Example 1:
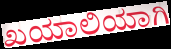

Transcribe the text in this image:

ಖಯಾಲಿಯಾಗಿ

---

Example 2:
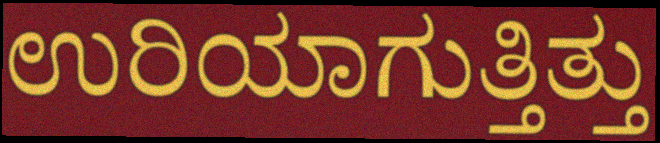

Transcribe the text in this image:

ಉರಿಯಾಗುತ್ತಿತ್ತು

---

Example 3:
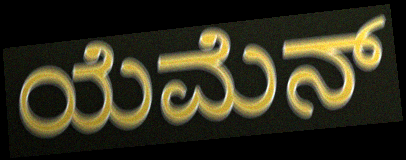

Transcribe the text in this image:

ಯೆಮೆನ್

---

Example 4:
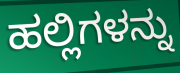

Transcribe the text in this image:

ಹಲ್ಲಿಗಳನ್ನು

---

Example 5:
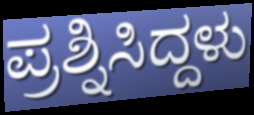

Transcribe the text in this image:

ಪ್ರಶ್ನಿಸಿದ್ದಳು